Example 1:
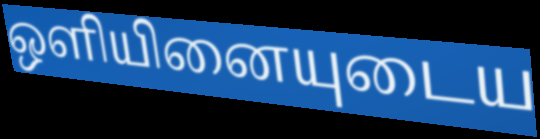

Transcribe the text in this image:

ஒளியினையுடைய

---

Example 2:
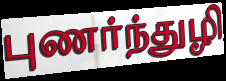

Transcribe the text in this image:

புணர்ந்துழி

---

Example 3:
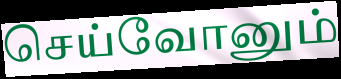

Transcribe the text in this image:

செய்வோனும்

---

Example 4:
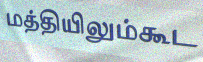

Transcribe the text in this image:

மத்தியிலும்கூட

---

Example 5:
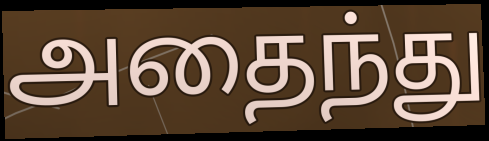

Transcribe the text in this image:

அதைந்து